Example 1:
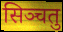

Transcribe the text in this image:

सिञ्चतु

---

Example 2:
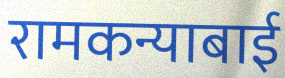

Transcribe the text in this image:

रामकन्याबाई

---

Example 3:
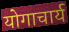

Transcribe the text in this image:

योगाचार्य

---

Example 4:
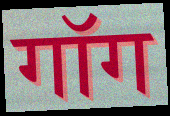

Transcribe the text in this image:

गॉग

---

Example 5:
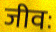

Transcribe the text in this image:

जीवः